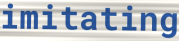
imitating